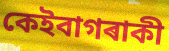
কেইবাগৰাকী